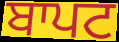
ਬਾਪਟ